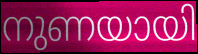
നുണയായി